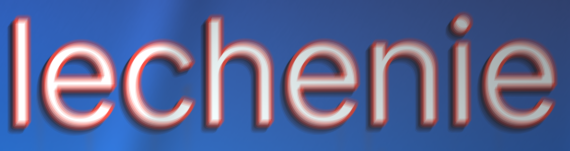
lechenie